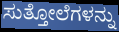
ಸುತ್ತೋಲೆಗಳನ್ನು